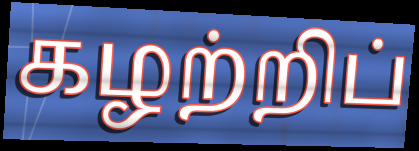
கழற்றிப்